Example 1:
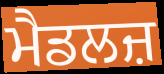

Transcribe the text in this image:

ਮੈਡਲਜ਼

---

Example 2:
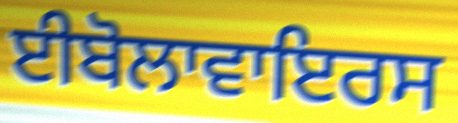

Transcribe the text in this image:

ਈਬੋਲਾਵਾਇਰਸ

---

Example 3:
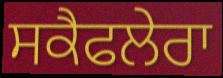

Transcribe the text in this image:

ਸਕੈਫਲੇਰਾ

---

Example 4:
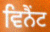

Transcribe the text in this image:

ਵਿਨੈਂਟ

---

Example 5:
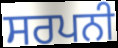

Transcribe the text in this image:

ਸਰਪਨੀ